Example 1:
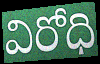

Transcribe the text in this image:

విరోధి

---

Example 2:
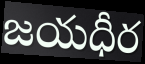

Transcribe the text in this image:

జయధీర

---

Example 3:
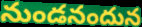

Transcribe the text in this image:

నుండనందున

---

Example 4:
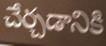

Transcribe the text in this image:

చేర్చడానికి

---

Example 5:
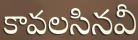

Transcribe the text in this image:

కావలసినవీ